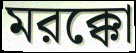
মরক্কো